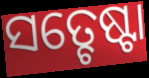
ସତ୍ଚେଷ୍ଟା